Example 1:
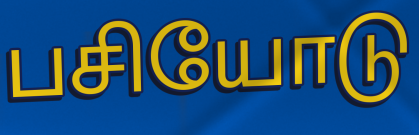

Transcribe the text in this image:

பசியோடு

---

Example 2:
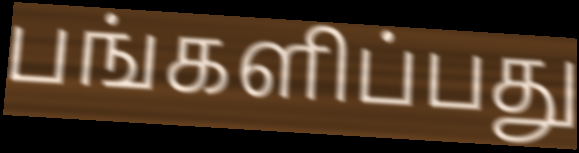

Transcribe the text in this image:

பங்களிப்பது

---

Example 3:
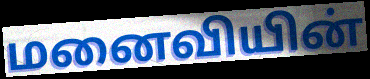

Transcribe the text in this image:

மனைவியின்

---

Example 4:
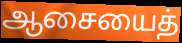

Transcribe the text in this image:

ஆசையைத்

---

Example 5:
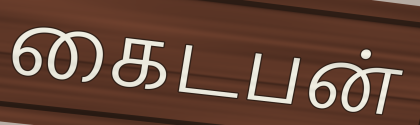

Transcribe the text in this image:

கைடபன்